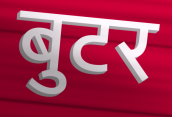
बुटर